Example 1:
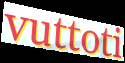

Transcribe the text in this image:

vuttoti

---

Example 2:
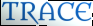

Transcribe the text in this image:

TRACE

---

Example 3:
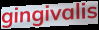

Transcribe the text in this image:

gingivalis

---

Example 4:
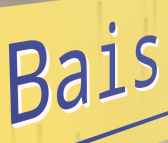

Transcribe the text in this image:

Bais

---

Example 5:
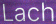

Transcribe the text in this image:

Lach